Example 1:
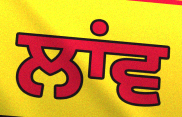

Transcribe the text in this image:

ਲਾਂਵ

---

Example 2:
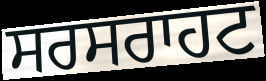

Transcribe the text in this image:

ਸਰਸਰਾਹਟ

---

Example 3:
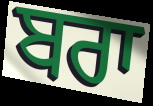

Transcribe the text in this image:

ਬਰਾ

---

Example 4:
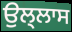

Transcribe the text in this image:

ਉਲ੍ਲਾਸ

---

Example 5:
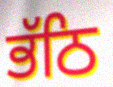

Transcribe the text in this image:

ਭੱਠਿ